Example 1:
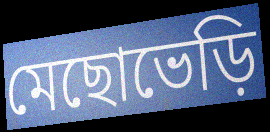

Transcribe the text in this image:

মেছোভেড়ি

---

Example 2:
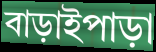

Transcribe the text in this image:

বাড়াইপাড়া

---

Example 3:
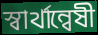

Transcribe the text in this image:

স্বার্থান্বেষী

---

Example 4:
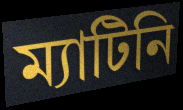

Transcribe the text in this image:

ম্যাটিনি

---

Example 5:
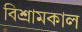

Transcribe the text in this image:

বিশ্রামকাল